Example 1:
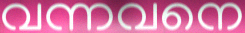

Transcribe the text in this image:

വന്നവനെ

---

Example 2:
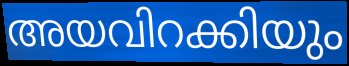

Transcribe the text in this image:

അയവിറക്കിയും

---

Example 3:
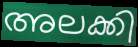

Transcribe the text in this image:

അലക്കി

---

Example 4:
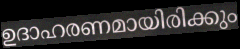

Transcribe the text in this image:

ഉദാഹരണമായിരിക്കും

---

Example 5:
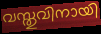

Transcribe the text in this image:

വസ്തുവിനായി